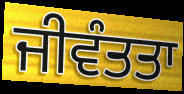
ਜੀਵੰਤਤਾ